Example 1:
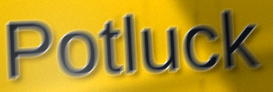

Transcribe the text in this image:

Potluck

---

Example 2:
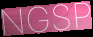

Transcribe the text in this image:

NGSP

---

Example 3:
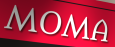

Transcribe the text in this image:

MOMA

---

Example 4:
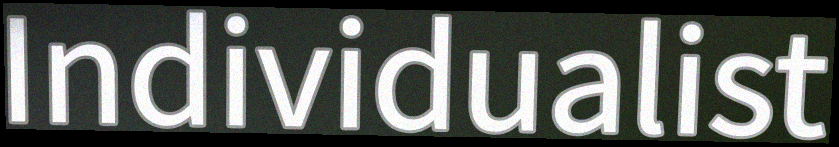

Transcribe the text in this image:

Individualist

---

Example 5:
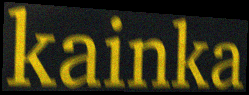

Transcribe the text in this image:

kainka